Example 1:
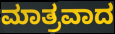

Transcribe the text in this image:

ಮಾತ್ರವಾದ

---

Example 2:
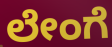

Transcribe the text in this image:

ಲೇಂಗೆ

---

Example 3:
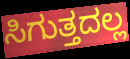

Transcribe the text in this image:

ಸಿಗುತ್ತದಲ್ಲ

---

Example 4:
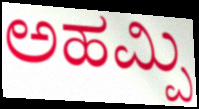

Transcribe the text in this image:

ಅಹಮ್ಪಿ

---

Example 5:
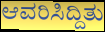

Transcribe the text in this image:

ಆವರಿಸಿದ್ದಿತು